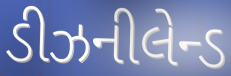
ડીઝનીલેન્ડ